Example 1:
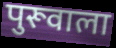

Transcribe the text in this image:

पुरूवाला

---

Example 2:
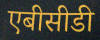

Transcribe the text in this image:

एबीसीडी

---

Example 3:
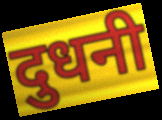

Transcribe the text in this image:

दुधनी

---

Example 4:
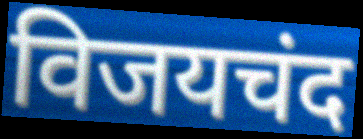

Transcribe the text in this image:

विजयचंद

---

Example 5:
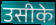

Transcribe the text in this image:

उसीके